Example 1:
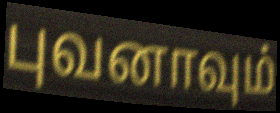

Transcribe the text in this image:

புவனாவும்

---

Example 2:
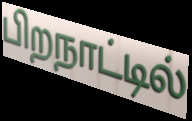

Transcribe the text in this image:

பிறநாட்டில்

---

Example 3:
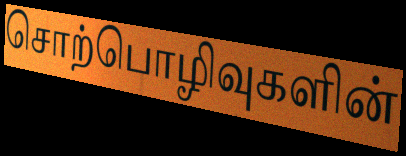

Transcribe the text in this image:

சொற்பொழிவுகளின்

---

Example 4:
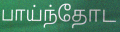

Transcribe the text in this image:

பாய்ந்தோட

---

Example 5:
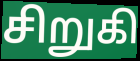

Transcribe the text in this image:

சிறுகி